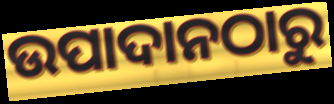
ଉପାଦାନଠାରୁ